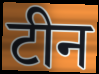
टीन